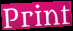
Print